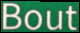
Bout